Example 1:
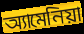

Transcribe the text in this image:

অ্যামেনিয়া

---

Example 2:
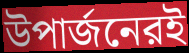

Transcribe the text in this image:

উপার্জনেরই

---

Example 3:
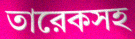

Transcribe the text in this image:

তারেকসহ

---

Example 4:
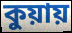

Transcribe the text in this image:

কুয়ায়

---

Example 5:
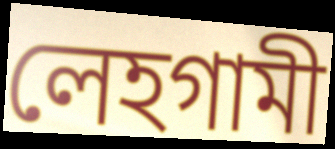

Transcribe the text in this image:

লেহগামী